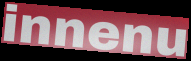
innenu